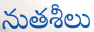
నుతశీలు